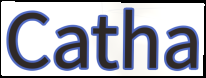
Catha